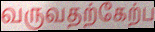
வருவதற்கேற்ப